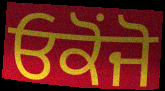
ਓਕੋਂਜੋ